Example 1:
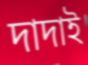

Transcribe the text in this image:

দাদাই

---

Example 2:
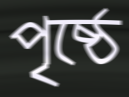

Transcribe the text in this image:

পৃষ্ঠে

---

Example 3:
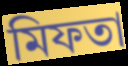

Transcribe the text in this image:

মিফতা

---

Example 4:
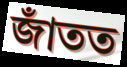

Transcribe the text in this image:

জাঁতত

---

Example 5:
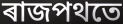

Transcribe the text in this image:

ৰাজপথতে